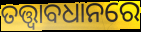
ତତ୍ତ୍ବାବଧାନରେ